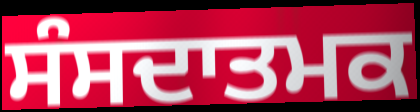
ਸੰਸਦਾਤਮਕ